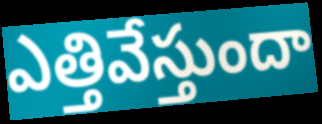
ఎత్తివేస్తుందా